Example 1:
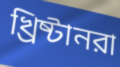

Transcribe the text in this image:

খ্রিষ্টানরা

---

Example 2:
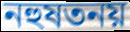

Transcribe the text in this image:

নহুষতনয়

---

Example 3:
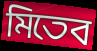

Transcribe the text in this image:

মিতেব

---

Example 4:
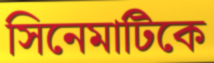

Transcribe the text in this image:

সিনেমাটিকে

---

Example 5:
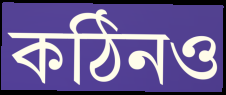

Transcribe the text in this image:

কঠিনও